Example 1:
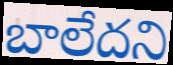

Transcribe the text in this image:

బాలేదని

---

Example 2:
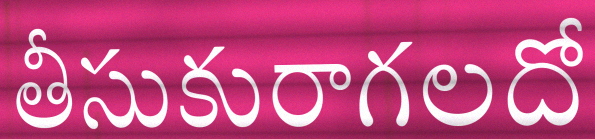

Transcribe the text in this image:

తీసుకురాగలదో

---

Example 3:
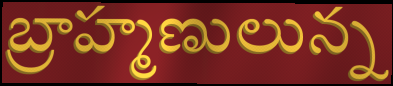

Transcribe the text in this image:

బ్రాహ్మణులున్న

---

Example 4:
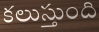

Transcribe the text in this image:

కలుస్తుంది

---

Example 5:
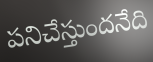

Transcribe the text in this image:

పనిచేస్తుందనేది